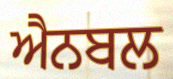
ਐਨਬਲ